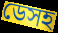
ডেসহ